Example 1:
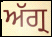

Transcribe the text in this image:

ਅੱਗ੍ਰ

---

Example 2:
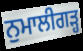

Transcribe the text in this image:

ਨੁਮਾਲੀਗੜ੍ਹ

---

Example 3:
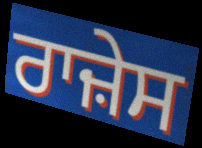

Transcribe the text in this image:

ਰਾਜ਼ੇਸ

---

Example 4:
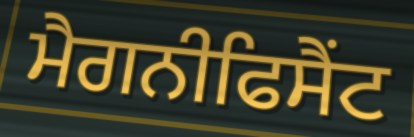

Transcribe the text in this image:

ਮੈਗਨੀਫਿਸੈਂਟ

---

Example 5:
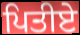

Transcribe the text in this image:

ਪਿਤੀਏ